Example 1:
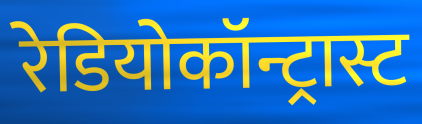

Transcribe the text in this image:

रेडियोकॉन्ट्रास्ट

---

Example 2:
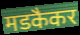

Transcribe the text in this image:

मडकैकर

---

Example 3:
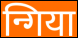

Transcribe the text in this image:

न्गिया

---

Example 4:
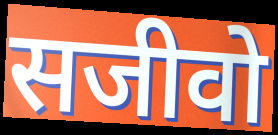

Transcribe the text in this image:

सजीवो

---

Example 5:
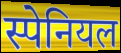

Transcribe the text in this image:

स्पेनियल